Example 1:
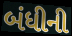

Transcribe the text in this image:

બંધીની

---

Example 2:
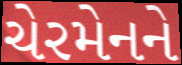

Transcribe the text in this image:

ચેરમેનને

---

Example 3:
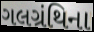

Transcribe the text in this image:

ગલગ્રંથિના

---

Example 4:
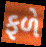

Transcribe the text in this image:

ફળે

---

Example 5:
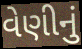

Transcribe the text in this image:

વેણીનું